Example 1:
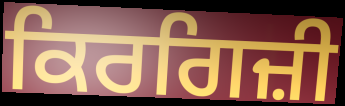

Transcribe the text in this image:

ਕਿਰਗਿਜ਼ੀ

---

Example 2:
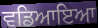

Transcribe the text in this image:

ਵਡਿਆਇਆ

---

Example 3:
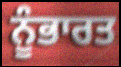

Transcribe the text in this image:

ਨੂੰਭਾਰਤ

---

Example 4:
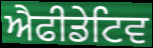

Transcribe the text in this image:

ਐਫੀਡੇਟਿਵ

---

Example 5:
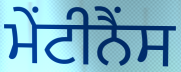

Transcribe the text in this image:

ਮੇਂਟੀਨੈਂਸ